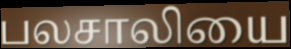
பலசாலியை